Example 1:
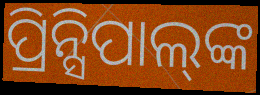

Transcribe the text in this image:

ପ୍ରିନ୍ସିପାଲ୍‍ଙ୍କ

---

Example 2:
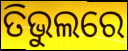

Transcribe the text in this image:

ତିଭୁଲରେ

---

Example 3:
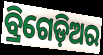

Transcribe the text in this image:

ବ୍ରିଗେଡ଼ିଅର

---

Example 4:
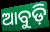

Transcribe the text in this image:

ଆବୁଡ଼ି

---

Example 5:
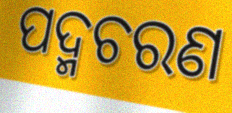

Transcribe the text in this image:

ପଦ୍ମଚରଣ